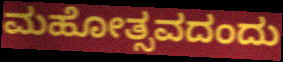
ಮಹೋತ್ಸವದಂದು